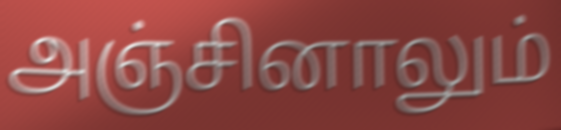
அஞ்சினாலும்